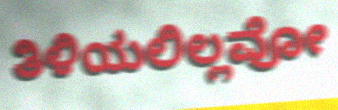
ತಿಳಿಯಲಿಲ್ಲವೋ